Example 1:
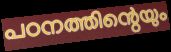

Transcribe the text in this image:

പഠനത്തിന്റെയും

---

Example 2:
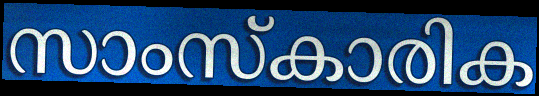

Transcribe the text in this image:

സാംസ്കാരിക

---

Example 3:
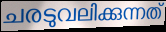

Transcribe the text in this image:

ചരടുവലിക്കുന്നത്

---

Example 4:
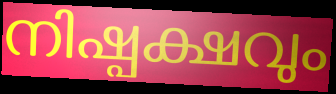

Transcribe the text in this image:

നിഷ്പക്ഷവും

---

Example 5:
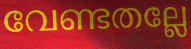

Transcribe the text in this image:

വേണ്ടതല്ലേ